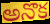
అనొక